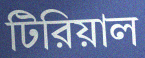
টিরিয়াল